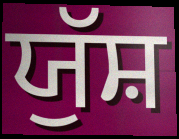
ਯੁੱਸ਼